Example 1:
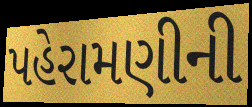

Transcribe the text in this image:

પહેરામણીની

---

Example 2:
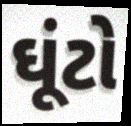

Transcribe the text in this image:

ઘૂંટો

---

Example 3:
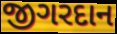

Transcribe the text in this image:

જીગરદાન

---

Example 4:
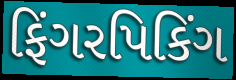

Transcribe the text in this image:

ફિંગરપિકિંગ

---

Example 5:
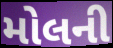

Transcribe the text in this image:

મોલની